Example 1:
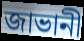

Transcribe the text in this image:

জাভানী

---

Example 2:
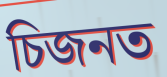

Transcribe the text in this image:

চিজনত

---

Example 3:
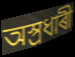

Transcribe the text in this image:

অস্ত্ৰধাৰী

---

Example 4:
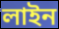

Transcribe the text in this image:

লাইন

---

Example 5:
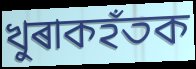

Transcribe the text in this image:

খুৰাকহঁতক